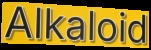
Alkaloid